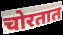
चोरतात